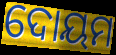
ଦୋୟମ